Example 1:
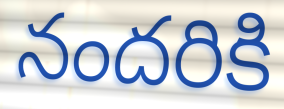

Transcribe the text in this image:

నందరికి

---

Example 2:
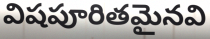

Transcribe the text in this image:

విషపూరితమైనవి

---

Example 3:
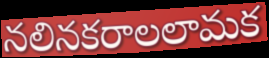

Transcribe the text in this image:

నలినకరాలలామక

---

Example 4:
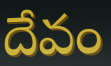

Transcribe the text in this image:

దేవం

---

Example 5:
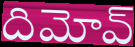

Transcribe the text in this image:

దిమోవ్